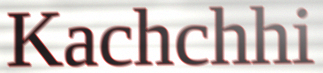
Kachchhi